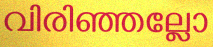
വിരിഞ്ഞല്ലോ